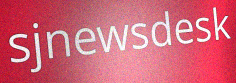
sjnewsdesk